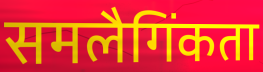
समलैगिंकता